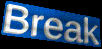
Break